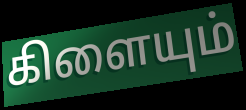
கிளையும்